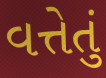
વત્તેતું